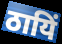
ठायिं